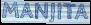
MANJITA